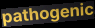
pathogenic